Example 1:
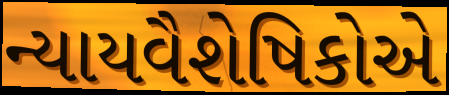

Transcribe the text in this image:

ન્યાયવૈશેષિકોએ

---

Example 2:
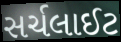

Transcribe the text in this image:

સર્ચલાઈટ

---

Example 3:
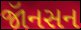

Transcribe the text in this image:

જૉનસન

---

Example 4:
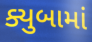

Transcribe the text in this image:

ક્યુબામાં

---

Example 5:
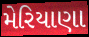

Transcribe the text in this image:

મેરિયાણા